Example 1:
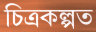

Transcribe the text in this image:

চিত্ৰকল্পত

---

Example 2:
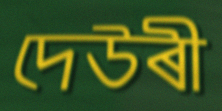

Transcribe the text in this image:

দেউৰী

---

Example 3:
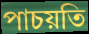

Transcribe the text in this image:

পাচয়তি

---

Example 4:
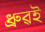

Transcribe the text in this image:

ধ্ৰুৱই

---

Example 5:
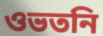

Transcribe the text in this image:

ওভতনি